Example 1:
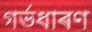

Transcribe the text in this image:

গৰ্ভধাৰণ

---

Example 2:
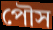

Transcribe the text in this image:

পৌস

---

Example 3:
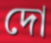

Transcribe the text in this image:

দো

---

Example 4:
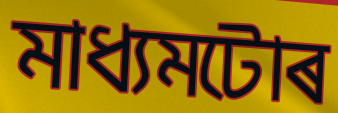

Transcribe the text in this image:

মাধ্যমটোৰ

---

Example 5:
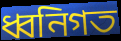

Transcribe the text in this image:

ধ্বনিগত